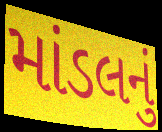
માંડલનું